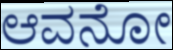
ಆವನೋ